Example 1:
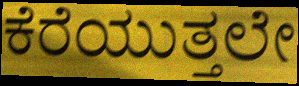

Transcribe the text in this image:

ಕೆರೆಯುತ್ತಲೇ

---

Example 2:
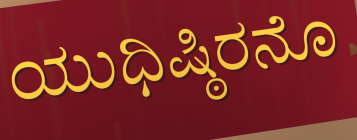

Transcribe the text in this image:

ಯುಧಿಷ್ಠಿರನೊ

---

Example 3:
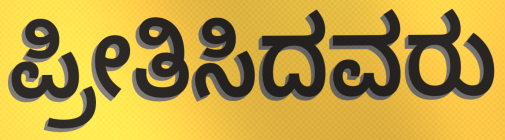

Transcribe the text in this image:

ಪ್ರೀತಿಸಿದವರು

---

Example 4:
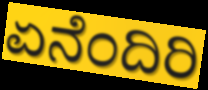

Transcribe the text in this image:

ಏನೆಂದಿರಿ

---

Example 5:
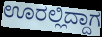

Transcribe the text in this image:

ಊರಲ್ಲಿದ್ದಾಗ